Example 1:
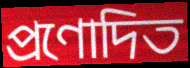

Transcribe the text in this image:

প্ৰণোদিত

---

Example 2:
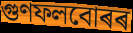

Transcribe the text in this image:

গুণফলবোৰৰ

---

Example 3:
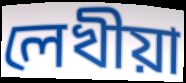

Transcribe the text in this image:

লেখীয়া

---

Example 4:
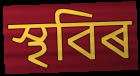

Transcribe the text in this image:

স্থবিৰ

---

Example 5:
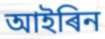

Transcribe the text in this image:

আইৰিন